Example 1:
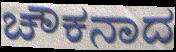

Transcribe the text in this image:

ಚೌಕನಾದ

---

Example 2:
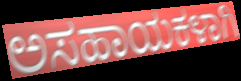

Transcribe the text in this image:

ಅಸಹಾಯಕಳಾಗಿ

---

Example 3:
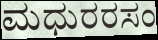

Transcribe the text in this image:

ಮಧುರರಸಂ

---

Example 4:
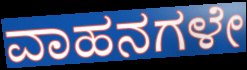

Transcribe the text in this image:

ವಾಹನಗಳೇ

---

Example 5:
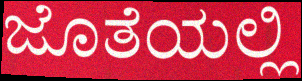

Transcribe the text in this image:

ಜೊತೆಯಲ್ಲಿ